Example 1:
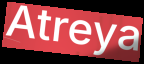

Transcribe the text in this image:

Atreya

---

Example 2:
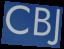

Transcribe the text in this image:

CBJ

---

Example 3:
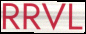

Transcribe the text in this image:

RRVL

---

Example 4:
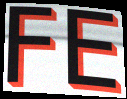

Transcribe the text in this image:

FE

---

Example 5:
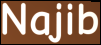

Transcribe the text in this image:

Najib